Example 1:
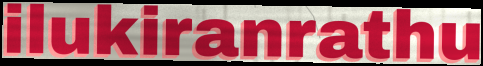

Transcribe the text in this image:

ilukiranrathu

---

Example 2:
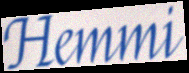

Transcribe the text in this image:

Hemmi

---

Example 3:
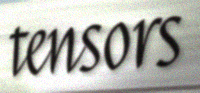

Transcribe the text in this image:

tensors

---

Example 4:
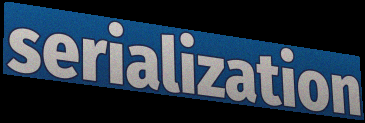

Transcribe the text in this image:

serialization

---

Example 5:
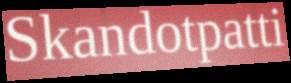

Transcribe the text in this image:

Skandotpatti